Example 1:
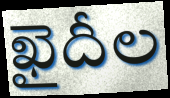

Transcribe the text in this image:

ఖైదీల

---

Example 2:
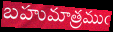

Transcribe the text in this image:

బహుమాత్రముఁ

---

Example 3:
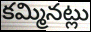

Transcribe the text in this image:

కమ్మినట్లు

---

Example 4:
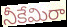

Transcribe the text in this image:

నీకేమిరా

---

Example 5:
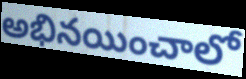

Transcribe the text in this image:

అభినయించాలో